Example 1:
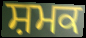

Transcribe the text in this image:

ਸ਼ਮਕ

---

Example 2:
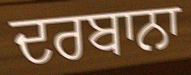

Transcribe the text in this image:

ਦਰਬਾਨਾ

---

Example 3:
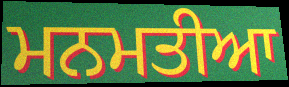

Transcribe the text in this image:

ਮਨਮਤੀਆ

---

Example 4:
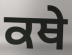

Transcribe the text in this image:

ਕਥੇ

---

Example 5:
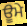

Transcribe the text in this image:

ਊਮੇ